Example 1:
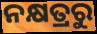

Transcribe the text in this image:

ନକ୍ଷତ୍ରରୁ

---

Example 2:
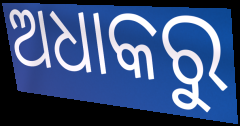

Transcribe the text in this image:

ଅଧାକରୁ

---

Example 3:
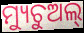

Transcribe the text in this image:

ମ୍ୟୁଚୁଅଲ୍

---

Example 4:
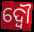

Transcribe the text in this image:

ଦ୍ଵୌ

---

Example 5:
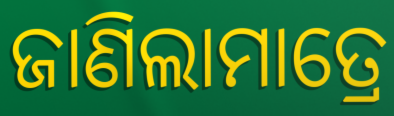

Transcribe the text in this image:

ଜାଣିଲାମାତ୍ରେ